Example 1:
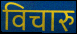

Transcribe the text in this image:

विचारु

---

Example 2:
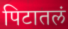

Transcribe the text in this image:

पिटातलं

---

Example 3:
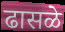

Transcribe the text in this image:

ढासळे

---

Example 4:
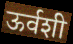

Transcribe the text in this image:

ऊर्वशी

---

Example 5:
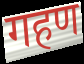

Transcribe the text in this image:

गहण